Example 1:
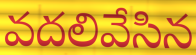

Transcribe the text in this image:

వదలివేసిన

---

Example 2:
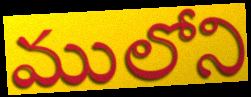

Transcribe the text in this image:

ములోని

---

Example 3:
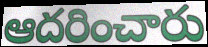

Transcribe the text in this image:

ఆదరించారు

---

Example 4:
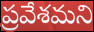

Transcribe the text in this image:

ప్రవేశమని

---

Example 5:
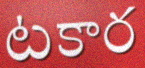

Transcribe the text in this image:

టకార